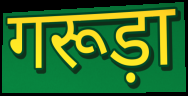
गरूड़ा